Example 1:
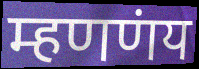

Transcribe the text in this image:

म्हणणंय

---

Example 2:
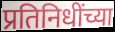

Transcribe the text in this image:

प्रतिनिधींच्या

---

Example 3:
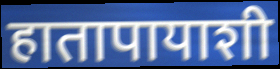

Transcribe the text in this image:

हातापायाशी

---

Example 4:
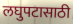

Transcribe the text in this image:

लघुपटासाठी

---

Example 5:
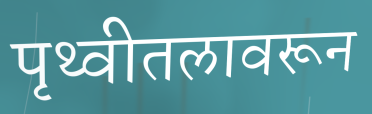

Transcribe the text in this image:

पृथ्वीतलावरून